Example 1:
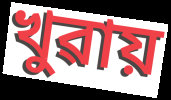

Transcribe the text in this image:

খুৱায়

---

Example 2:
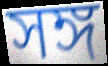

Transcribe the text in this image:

সঙ্গ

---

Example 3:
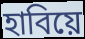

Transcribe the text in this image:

হাবিয়ে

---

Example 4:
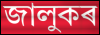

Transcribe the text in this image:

জালুকৰ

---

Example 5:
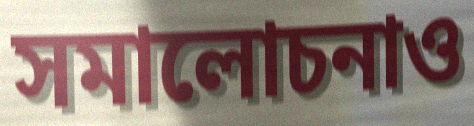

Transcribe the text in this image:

সমালোচনাও